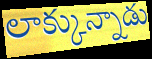
లాక్కున్నాడు